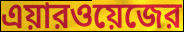
এয়ারওয়েজের